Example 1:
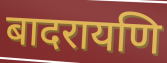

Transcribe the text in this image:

बादरायणि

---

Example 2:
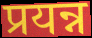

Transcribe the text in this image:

प्रयन्न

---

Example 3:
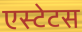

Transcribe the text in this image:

एस्टेटस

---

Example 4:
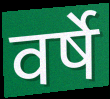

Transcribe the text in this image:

वर्षे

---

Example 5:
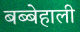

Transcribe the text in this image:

बब्बेहाली